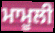
ਮਾਮੂਲੀ